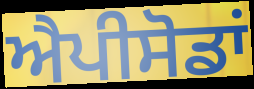
ਐਪੀਸੋਡਾਂ